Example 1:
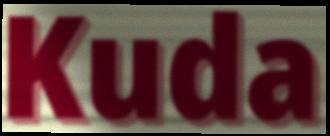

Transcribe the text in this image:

Kuda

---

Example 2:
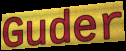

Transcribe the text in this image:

Guder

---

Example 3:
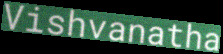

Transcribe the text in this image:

Vishvanatha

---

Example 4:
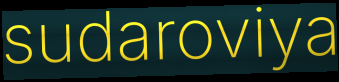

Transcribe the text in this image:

sudaroviya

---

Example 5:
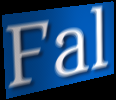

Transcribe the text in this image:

Fal